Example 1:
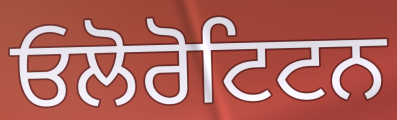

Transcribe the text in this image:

ਓਲੋਰੋਟਿਟਨ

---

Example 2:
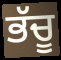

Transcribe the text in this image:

ਭੱਚੂ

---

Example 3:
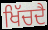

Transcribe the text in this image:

ਖਿੱਚਦੈ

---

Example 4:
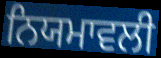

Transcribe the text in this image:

ਨਿਯਮਾਵਲੀ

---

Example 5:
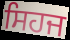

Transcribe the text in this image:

ਸਿਹਜ